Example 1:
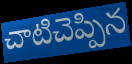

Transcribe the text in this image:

చాటిచెప్పిన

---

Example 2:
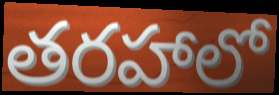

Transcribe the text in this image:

తరహాలో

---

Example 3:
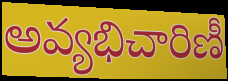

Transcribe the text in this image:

అవ్యభిచారిణీ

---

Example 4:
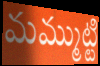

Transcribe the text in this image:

మమ్ముట్టి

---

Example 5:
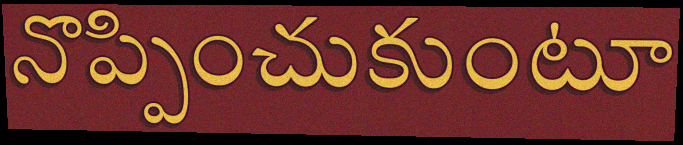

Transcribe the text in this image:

నొప్పించుకుంటూ